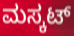
ಮಸ್ಕಟ್